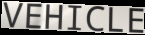
VEHICLE